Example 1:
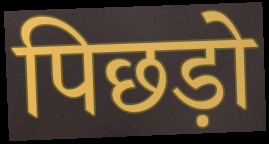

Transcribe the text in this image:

पिछड़ो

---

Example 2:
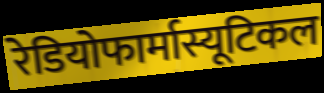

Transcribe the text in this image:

रेडियोफार्मास्यूटिकल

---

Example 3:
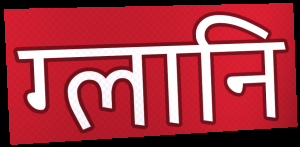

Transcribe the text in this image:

ग्लानि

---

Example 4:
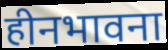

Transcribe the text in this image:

हीनभावना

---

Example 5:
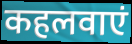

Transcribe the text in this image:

कहलवाएं